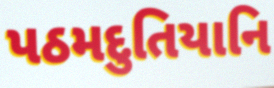
પઠમદુતિયાનિ